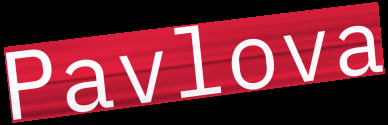
Pavlova